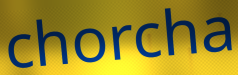
chorcha